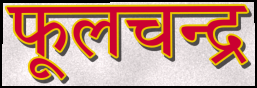
फूलचन्द्र